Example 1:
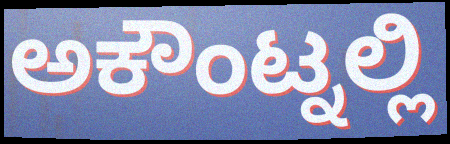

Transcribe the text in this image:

ಅಕೌಂಟ್ನಲ್ಲಿ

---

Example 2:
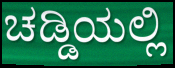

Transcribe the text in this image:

ಚಡ್ಡಿಯಲ್ಲಿ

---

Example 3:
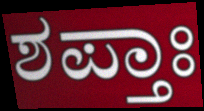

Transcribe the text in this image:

ಶಪ್ತಾಃ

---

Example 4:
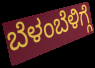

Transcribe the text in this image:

ಬೆಳಂಬೆಳಿಗ್ಗೆ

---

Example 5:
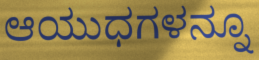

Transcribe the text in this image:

ಆಯುಧಗಳನ್ನೂ